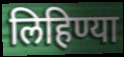
लिहिण्या